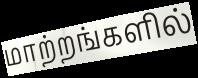
மாற்றங்களில்